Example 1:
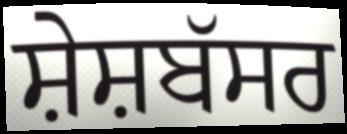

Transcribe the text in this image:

ਸ਼ੇਸ਼ਬੱਸਰ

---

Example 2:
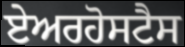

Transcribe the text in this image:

ਏਅਰਹੋਸਟੈਸ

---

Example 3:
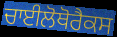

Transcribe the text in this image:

ਚਾਈਲੋਥੋਰੈਕਸ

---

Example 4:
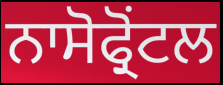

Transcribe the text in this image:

ਨਾਸੋਫ੍ਰੋਂਟਲ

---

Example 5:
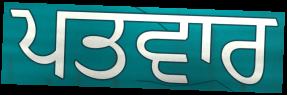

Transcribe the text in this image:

ਪਤਵਾਰ